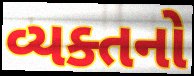
વ્યક્તનો